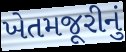
ખેતમજૂરીનું